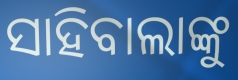
ସାହିବାଲାଙ୍କୁ